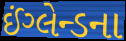
ઈંગ્લેન્ડના